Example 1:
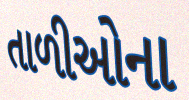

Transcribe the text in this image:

તાળીઓના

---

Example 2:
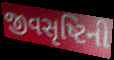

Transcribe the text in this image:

જીવસૃષ્ટિની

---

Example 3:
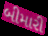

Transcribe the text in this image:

બીમારી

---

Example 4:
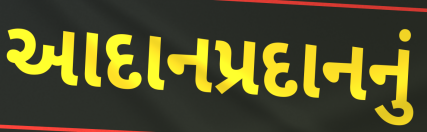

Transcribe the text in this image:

આદાનપ્રદાનનું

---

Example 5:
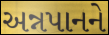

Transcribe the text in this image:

અન્નપાનને